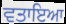
ਵਤਾਇਆ